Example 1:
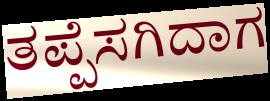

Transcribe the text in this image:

ತಪ್ಪೆಸಗಿದಾಗ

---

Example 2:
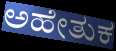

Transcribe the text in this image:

ಅಹೇತುಕ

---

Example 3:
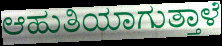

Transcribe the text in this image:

ಆಹುತಿಯಾಗುತ್ತಾಳೆ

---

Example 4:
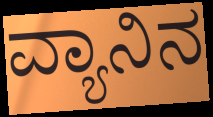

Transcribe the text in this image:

ವ್ಯಾನಿನ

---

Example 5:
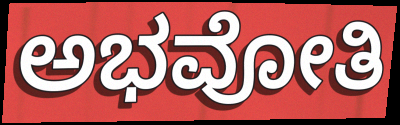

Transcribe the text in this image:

ಅಭವೋತಿ